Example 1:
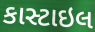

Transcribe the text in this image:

કાસ્ટાઇલ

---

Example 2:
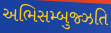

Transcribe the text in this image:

અભિસમ્બુજ્ઝતિ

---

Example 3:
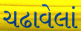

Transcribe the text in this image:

ચઢાવેલાં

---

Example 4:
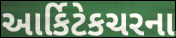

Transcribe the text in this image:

આર્કિટેકચરના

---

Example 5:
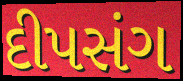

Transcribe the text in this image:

દીપસંગ